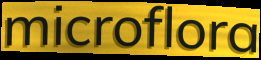
microflora